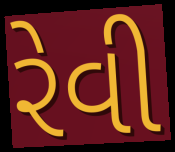
રેવી